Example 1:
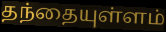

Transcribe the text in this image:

தந்தையுள்ளம்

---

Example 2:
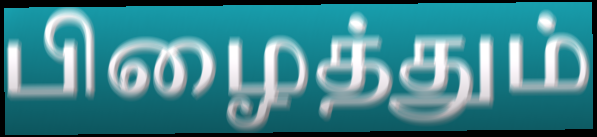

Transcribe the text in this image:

பிழைத்தும்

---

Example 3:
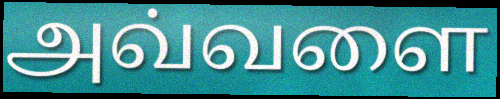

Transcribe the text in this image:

அவ்வளை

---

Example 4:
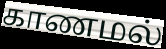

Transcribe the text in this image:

காணமல்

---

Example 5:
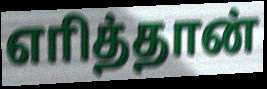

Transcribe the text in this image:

எரித்தான்